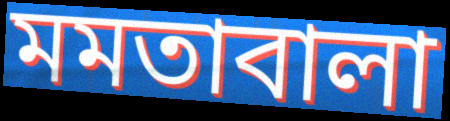
মমতাবালা